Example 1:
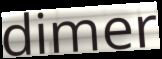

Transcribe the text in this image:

dimer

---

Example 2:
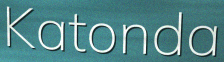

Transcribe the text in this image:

Katonda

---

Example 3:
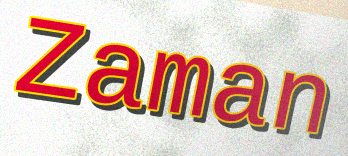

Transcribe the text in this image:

Zaman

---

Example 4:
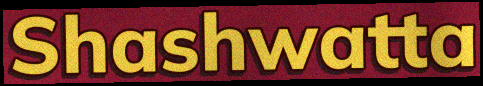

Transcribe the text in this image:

Shashwatta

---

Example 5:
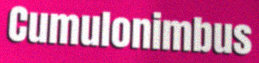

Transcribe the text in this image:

Cumulonimbus